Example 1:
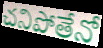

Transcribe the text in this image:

చనిపోతేనో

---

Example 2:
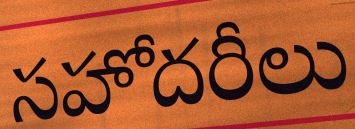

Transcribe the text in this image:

సహోదరీలు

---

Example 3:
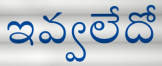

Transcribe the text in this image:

ఇవ్వలేదో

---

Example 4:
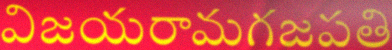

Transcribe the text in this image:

విజయరామగజపతి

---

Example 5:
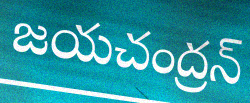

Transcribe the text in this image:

జయచంద్రన్